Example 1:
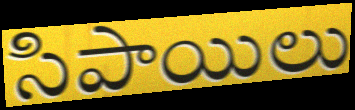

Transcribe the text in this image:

సిపాయిలు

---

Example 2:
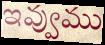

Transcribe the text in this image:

ఇవ్వుము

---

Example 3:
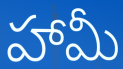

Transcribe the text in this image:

హామీ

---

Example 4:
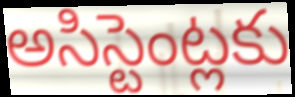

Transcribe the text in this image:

అసిస్టెంట్లకు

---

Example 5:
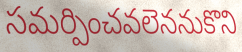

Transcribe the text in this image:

సమర్పించవలెననుకొని